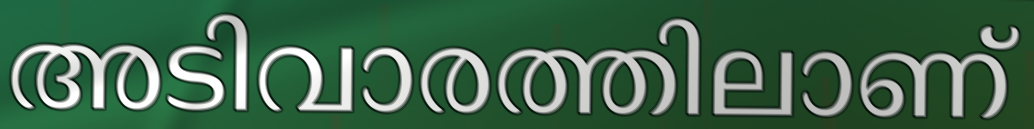
അടിവാരത്തിലാണ്